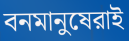
বনমানুষেরাই